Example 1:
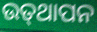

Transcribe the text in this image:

ଉତ୍‍ଥାପନ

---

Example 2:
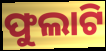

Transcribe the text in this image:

ଫୁଲାଟି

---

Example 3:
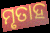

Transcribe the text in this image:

ମୃତାହ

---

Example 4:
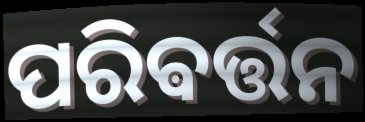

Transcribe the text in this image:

ପରିଵର୍ତ୍ତନ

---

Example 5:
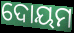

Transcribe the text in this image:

ଦୋୟମ